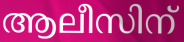
ആലീസിന്